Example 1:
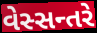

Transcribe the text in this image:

વેસ્સન્તરે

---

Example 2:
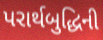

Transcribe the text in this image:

પરાર્થબુદ્ધિની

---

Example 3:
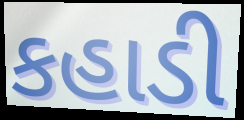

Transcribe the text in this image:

કહાડી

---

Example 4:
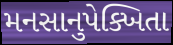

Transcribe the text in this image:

મનસાનુપેક્ખિતા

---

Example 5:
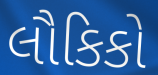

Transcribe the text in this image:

લૌકિકો